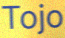
Tojo